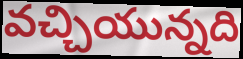
వచ్చియున్నది